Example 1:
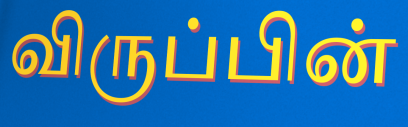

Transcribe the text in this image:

விருப்பின்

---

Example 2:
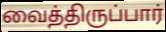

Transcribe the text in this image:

வைத்திருப்பார்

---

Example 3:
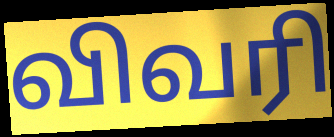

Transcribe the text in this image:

விவரி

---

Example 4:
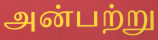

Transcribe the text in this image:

அன்பற்று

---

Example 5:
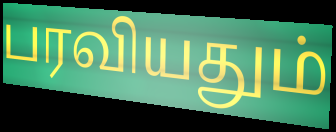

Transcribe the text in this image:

பரவியதும்